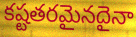
కష్టతరమైనదైనా